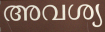
അവശ്യ